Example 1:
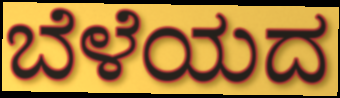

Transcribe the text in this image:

ಬೆಳೆಯದ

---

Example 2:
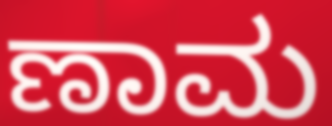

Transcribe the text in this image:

ಣಾಮ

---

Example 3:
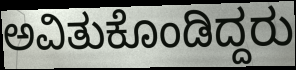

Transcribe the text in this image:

ಅವಿತುಕೊಂಡಿದ್ದರು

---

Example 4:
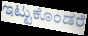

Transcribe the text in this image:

ಇಟ್ಟುಕೊಂಡರೆ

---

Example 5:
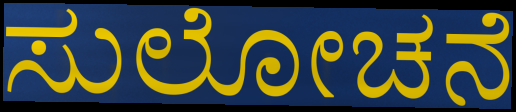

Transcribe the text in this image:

ಸುಲೋಚನೆ